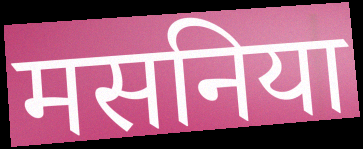
मसनिया